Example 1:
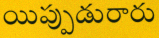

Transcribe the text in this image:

యిప్పుడురారు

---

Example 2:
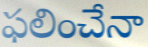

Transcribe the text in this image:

ఫలించేనా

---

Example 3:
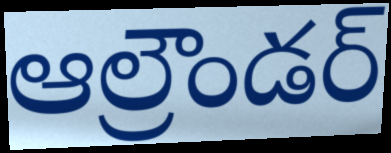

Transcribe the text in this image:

ఆల్రౌండర్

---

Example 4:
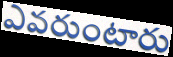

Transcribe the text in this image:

ఎవరుంటారు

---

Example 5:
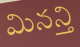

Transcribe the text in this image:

మినన్తి